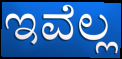
ಇವೆಲ್ಲ